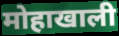
मोहाखाली